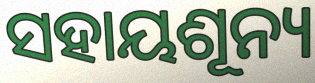
ସହାୟଶୂନ୍ୟ